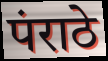
पंराठे